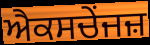
ਐਕਸਚੇਂਜਜ਼